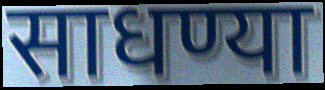
साधण्या